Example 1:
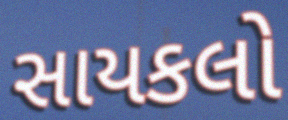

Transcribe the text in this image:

સાયકલો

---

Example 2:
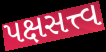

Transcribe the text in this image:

પક્ષસત્ત્વ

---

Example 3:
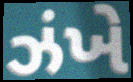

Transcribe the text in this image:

ઝંખે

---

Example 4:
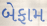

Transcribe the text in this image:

બેફામ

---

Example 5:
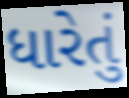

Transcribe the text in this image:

ધારેતું